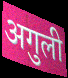
अगुली